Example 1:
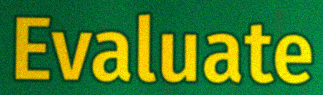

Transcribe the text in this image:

Evaluate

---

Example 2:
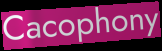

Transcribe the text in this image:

Cacophony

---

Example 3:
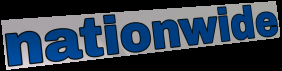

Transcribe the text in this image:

nationwide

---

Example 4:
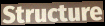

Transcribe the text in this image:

Structure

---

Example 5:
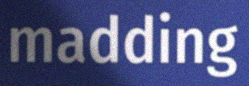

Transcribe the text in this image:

madding